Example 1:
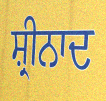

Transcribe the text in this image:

ਸ਼੍ਰੀਨਾਦ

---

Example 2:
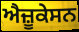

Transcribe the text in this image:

ਐਜ਼ੂਕੇਸਨ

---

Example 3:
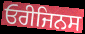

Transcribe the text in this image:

ਓਰੀਜਿਨਸ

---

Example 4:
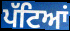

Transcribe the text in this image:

ਪੱਟਿਆਂ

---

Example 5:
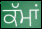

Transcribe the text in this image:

ਕੱਮਾਂ